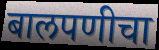
बालपणीचा